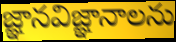
జ్ఞానవిజ్ఞానాలను